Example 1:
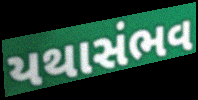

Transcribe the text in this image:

યથાસંભવ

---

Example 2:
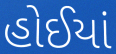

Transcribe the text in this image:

હોઈયાં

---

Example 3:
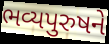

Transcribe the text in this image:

ભવ્યપુરુષને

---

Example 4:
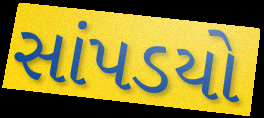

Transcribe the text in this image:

સાંપડયો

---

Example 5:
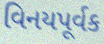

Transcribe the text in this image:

વિનયપૂર્વક